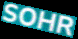
SOHR